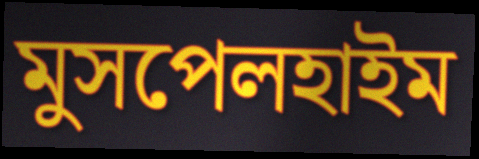
মুসপেলহাইম